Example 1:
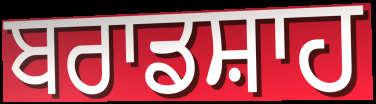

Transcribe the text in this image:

ਬਰਾਡਸ਼ਾਹ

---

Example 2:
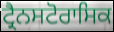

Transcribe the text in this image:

ਟ੍ਰੈਨਸਟੋਰਾਸਿਕ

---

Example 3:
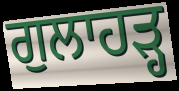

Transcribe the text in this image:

ਗੁਲਾਹੜ੍ਹ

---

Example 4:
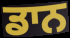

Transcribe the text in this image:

ਡਾਨ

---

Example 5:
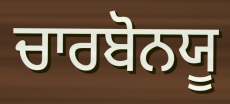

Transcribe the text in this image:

ਚਾਰਬੋਨਯੂ